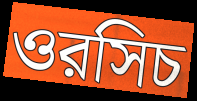
ওরসিচ